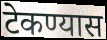
टेकण्यास